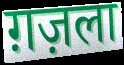
ग़ज़ला